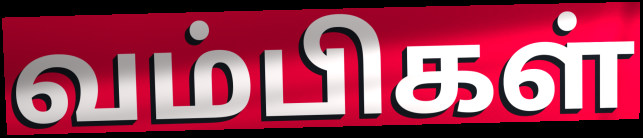
வம்பிகள்